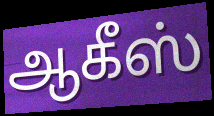
ஆகீஸ்